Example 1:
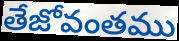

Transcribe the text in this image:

తేజోవంతము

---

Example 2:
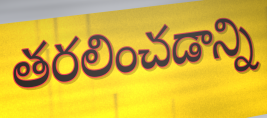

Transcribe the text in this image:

తరలించడాన్ని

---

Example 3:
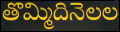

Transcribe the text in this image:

తొమ్మిదినెలల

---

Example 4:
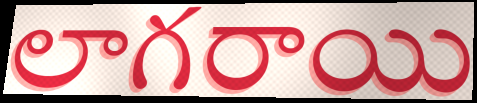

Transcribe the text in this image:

లాగరాయి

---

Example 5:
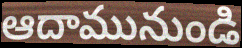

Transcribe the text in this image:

ఆదామునుండి